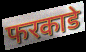
फरकाडे